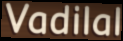
Vadilal